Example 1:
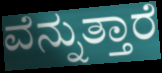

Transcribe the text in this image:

ವೆನ್ನುತ್ತಾರೆ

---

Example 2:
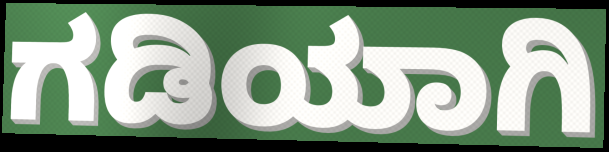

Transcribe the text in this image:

ಗಡಿಯಾಗಿ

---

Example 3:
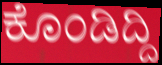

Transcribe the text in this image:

ಕೊಂಡಿದ್ದಿ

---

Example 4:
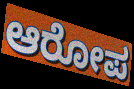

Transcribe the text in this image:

ಆರೋಪ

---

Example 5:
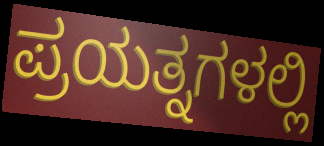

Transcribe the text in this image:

ಪ್ರಯತ್ನಗಳಲ್ಲಿ